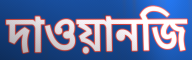
দাওয়ানজি